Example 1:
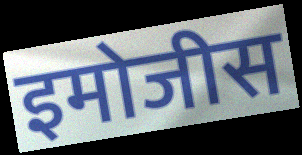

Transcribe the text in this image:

इमोजीस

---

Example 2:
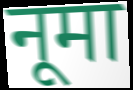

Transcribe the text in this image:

नूमा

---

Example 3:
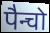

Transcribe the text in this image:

पैन्चो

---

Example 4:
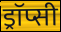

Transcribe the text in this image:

ड्रॉप्सी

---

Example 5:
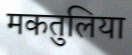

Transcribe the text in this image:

मकतुलिया